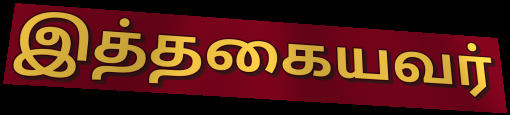
இத்தகையவர்